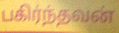
பகிர்ந்தவன்